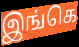
இங்கெ